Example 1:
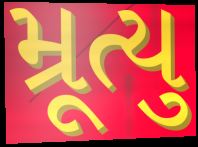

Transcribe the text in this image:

મ્રૂત્યુ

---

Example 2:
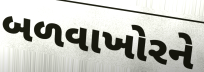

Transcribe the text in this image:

બળવાખોરને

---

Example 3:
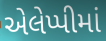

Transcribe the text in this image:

એલેપ્પીમાં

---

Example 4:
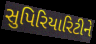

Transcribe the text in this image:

સુપિરિયારિટીને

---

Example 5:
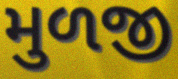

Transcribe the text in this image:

મુળજી